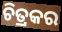
ଚିତ୍ରକର